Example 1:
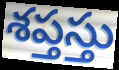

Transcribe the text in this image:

శప్తస్తు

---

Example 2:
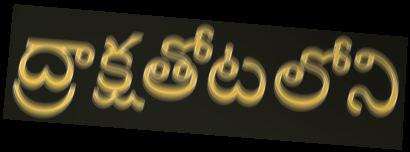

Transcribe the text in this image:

ద్రాక్షతోటలోని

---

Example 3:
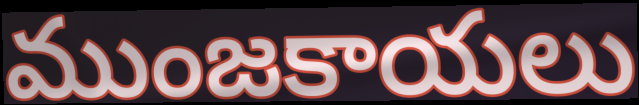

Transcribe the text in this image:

ముంజకాయలు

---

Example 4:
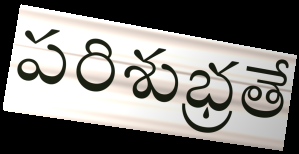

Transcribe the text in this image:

పరిశుభ్రతే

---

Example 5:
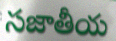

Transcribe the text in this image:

సజాతీయ